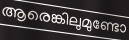
ആരെങ്കിലുമുണ്ടോ